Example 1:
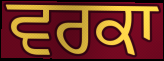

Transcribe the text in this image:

ਵਰਕਾ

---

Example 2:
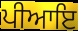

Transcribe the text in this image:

ਪੀਆਇ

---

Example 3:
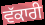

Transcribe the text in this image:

ਵੱਕਾਰੀ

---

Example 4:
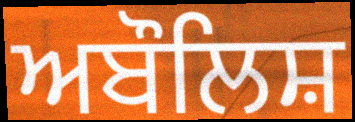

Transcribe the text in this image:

ਅਬੌਲਿਸ਼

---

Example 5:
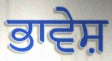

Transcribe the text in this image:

ਭਾਵੇਸ਼